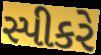
સ્પીકરે